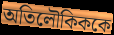
অতিলৌকিককে